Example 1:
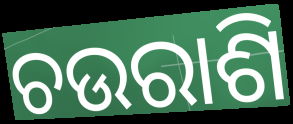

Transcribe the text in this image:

ଚଉରାଶି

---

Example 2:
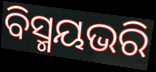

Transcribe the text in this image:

ବିସ୍ମୟଭରି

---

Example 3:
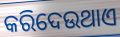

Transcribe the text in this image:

କରିଦେଉଥାଏ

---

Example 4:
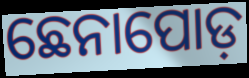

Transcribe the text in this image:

ଛେନାପୋଡ଼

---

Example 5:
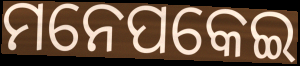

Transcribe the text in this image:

ମନେପକେଇ